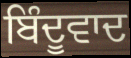
ਬਿੰਦੂਵਾਦ